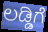
ಲಡ್ಡಿಗೆ